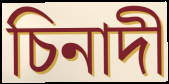
চিনাদী